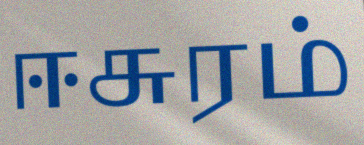
ஈசுரம்